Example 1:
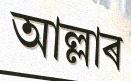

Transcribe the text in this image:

আল্লাৰ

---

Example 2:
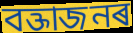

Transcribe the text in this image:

বক্তাজনৰ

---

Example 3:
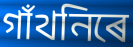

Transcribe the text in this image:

গাঁথনিৰে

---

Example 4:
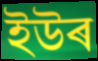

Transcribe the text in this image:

ইউৰ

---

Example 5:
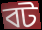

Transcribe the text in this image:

বট